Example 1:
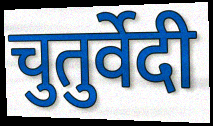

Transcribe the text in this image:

चुतुर्वेदी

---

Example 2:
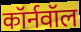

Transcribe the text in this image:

कॉर्नवॉल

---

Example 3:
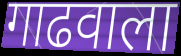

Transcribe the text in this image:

गाढवाला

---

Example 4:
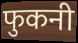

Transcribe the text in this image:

फुकनी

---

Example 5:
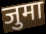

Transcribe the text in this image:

जुमा